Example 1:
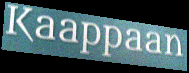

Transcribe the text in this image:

Kaappaan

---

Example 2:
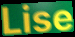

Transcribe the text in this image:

Lise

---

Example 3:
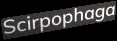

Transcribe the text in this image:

Scirpophaga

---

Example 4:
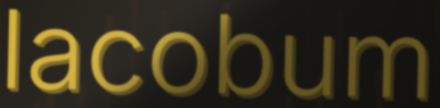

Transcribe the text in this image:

Iacobum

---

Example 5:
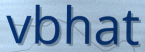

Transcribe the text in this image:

vbhat